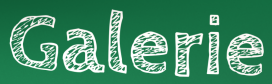
Galerie